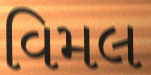
વિમલ